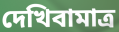
দেখিবামাত্র